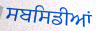
ਸਬਸਿਡੀਆਂ